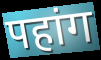
पहांग